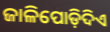
ଜାଳିପୋଡ଼ିଦିଏ